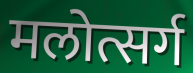
मलोत्सर्ग